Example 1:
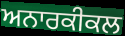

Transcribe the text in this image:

ਅਨਾਰਕੀਕਲ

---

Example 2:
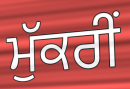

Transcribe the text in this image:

ਮੁੱਕਰੀਂ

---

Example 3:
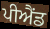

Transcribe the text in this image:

ਪੀਐਂਡ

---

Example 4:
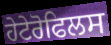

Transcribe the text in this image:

ਹੇਟੇਰੋਫਿਲਸ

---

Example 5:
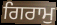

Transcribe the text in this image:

ਗਿਰਾਮੁ